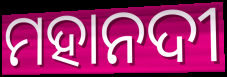
ମହାନଦୀ